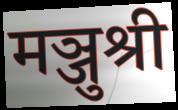
मञ्जुश्री